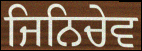
ਜਿਨਿਚੇਵ